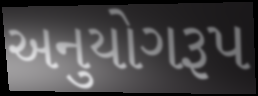
અનુયોગરૂપ